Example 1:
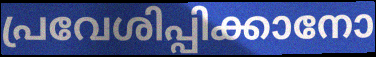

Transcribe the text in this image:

പ്രവേശിപ്പിക്കാനോ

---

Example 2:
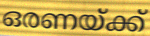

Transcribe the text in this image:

ഒരണയ്ക്ക്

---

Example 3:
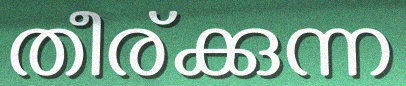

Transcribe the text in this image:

തീര്ക്കുന്ന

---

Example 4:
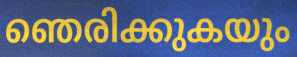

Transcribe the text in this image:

ഞെരിക്കുകയും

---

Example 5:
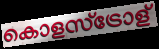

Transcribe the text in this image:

കൊളസ്ട്രോള്